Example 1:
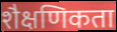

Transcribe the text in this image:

शैक्षणिकता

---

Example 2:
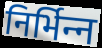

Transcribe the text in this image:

निर्भिन्न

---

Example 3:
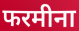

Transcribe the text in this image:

फरमीना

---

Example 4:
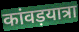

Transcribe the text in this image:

कांवड़यात्रा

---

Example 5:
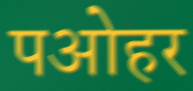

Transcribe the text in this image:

पओहर